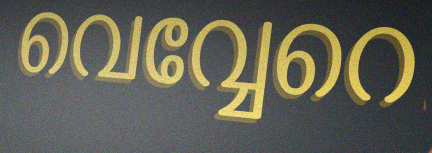
വെവ്വേറെ